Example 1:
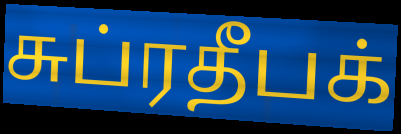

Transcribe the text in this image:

சுப்ரதீபக்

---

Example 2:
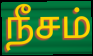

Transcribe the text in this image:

நீசம்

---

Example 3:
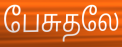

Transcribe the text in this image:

பேசுதலே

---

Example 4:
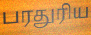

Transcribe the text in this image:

பரதுரிய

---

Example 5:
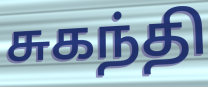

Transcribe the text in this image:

சுகந்தி